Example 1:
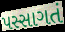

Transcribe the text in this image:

પસ્સાગતં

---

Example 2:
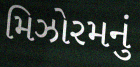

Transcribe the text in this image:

મિઝોરમનું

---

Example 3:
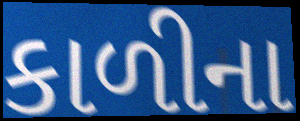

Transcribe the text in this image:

કાળીના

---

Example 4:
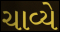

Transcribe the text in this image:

ચાવ્યે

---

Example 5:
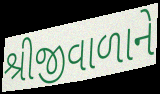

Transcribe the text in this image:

શ્રીજીવાળાને